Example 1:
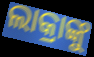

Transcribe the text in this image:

ଲାକ୍ରାଙ୍କୁ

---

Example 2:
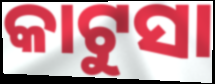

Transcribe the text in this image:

କାଟୁସା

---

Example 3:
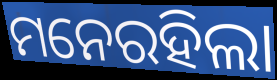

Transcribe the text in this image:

ମନେରହିଲା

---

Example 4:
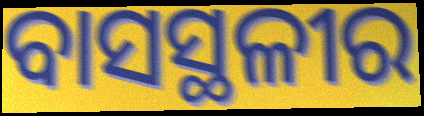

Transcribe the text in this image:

ବାସସ୍ଥଳୀର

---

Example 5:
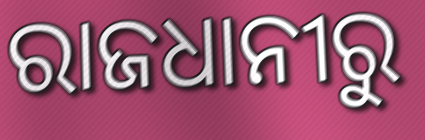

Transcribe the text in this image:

ରାଜଧାନୀରୁ